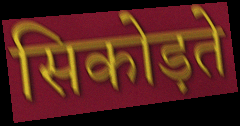
सिकोड़ते